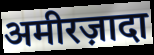
अमीरज़ादा